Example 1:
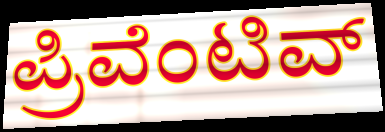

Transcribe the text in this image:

ಪ್ರಿವೆಂಟಿವ್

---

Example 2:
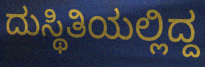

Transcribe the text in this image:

ದುಸ್ಥಿತಿಯಲ್ಲಿದ್ದ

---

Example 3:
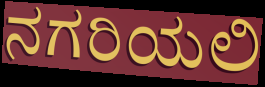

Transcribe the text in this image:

ನಗರಿಯಲಿ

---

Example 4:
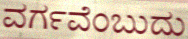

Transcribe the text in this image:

ವರ್ಗವೆಂಬುದು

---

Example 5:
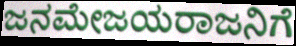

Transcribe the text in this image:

ಜನಮೇಜಯರಾಜನಿಗೆ